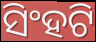
ସିଂହଟି